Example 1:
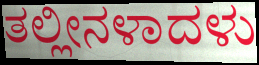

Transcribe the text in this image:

ತಲ್ಲೀನಳಾದಳು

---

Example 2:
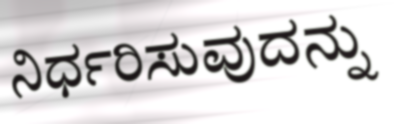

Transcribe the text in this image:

ನಿರ್ಧರಿಸುವುದನ್ನು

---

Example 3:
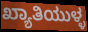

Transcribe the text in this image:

ಖ್ಯಾತಿಯುಳ್ಳ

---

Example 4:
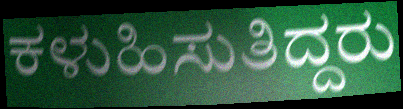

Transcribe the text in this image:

ಕಳುಹಿಸುತಿದ್ದರು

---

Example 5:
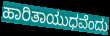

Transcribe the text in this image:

ಹಾರಿತಾಯುಧವೆಂದು